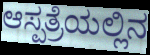
ಆಸ್ಪತ್ರೆಯಲ್ಲಿನ